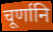
चूर्णानि